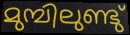
മുമ്പിലുണ്ടു്